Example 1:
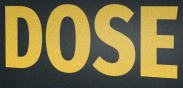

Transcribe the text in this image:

DOSE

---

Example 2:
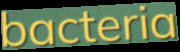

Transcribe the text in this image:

bacteria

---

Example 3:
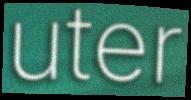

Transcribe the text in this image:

uter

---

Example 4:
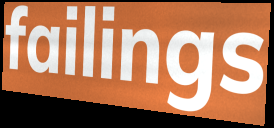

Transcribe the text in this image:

failings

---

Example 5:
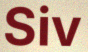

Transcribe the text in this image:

Siv